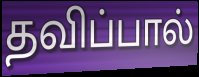
தவிப்பால்